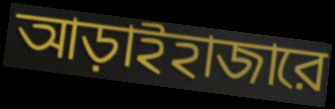
আড়াইহাজারে